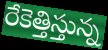
రేకెత్తిస్తున్న